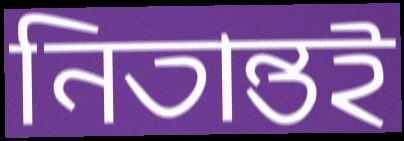
নিতান্তই